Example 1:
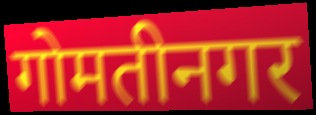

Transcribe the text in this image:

गोमतीनगर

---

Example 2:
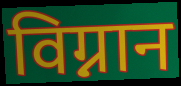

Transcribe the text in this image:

विग्नान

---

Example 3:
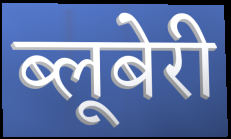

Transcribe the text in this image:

ब्लूबेरी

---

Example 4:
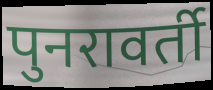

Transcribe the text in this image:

पुनरावर्ती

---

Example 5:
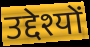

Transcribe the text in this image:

उद्देश्यों